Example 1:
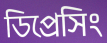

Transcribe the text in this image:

ডিপ্রেসিং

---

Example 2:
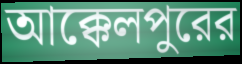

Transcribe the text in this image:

আক্কেলপুরের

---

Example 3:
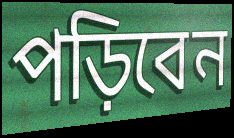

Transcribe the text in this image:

পড়িবেন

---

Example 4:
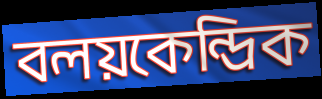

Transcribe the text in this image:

বলয়কেন্দ্রিক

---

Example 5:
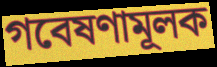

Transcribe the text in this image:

গবেষণামূলক